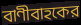
বাণীবাহকের